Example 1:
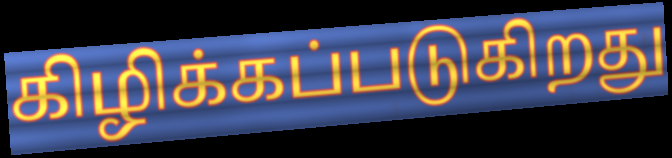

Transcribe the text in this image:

கிழிக்கப்படுகிறது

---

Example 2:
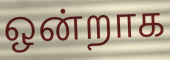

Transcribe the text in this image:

ஒன்றாக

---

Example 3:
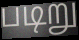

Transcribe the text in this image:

படிறு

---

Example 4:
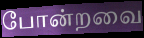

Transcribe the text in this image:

போன்றவை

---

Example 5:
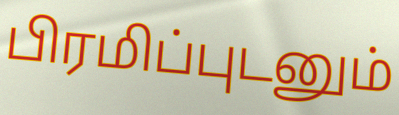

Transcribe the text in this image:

பிரமிப்புடனும்